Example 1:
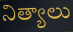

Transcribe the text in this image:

నిత్యాలు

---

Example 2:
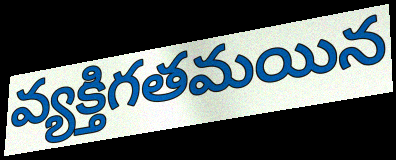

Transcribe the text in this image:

వ్యక్తిగతమయిన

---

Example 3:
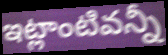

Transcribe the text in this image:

ఇట్లాంటివన్నీ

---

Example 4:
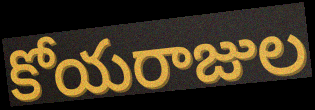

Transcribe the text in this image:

కోయరాజుల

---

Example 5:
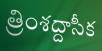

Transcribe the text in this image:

త్రింశద్దాసీక